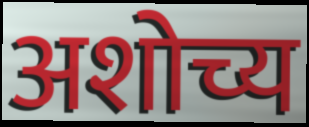
अशोच्य